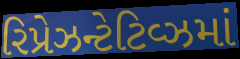
રિપ્રેઝન્ટેટિવ્ઝમાં